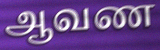
ஆவண